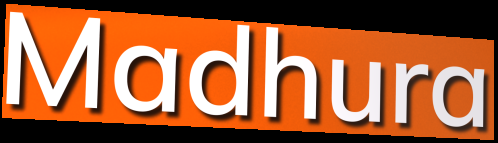
Madhura